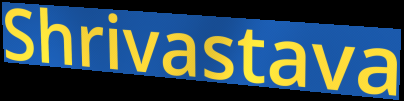
Shrivastava